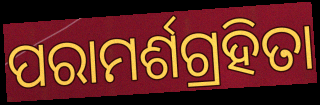
ପରାମର୍ଶଗ୍ରହିତା